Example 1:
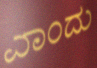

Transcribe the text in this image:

ಎಾಂದು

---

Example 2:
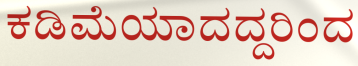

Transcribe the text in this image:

ಕಡಿಮೆಯಾದದ್ದರಿಂದ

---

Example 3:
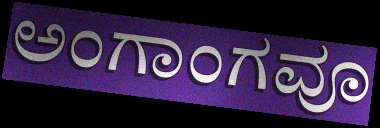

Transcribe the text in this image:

ಅಂಗಾಂಗವೂ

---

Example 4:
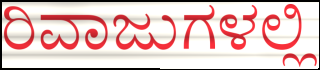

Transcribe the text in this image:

ರಿವಾಜುಗಳಲ್ಲಿ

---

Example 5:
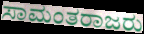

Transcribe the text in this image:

ಸಾಮಂತರಾಜರು